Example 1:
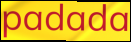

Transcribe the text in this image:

padada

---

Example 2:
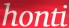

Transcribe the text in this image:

honti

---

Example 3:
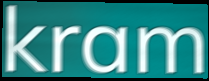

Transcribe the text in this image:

kram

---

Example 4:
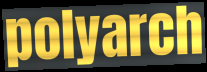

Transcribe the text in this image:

polyarch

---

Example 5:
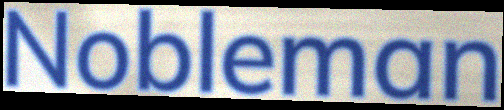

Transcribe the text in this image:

Nobleman